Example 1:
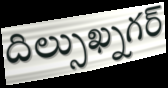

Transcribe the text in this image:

దిల్సుఖ్నగర్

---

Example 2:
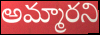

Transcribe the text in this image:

అమ్మారని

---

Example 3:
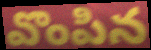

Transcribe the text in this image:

వొంపిన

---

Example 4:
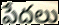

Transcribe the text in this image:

పేదలు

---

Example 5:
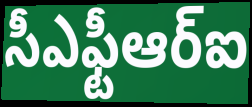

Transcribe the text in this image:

సీఎఫ్టీఆర్ఐ